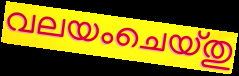
വലയംചെയ്തു